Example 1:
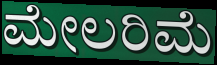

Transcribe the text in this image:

ಮೇಲರಿಮೆ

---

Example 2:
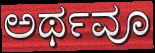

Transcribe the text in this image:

ಅರ್ಥವೂ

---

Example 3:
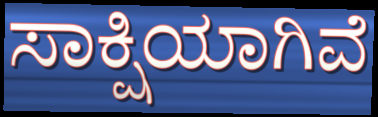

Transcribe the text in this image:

ಸಾಕ್ಷಿಯಾಗಿವೆ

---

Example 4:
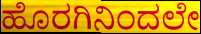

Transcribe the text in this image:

ಹೊರಗಿನಿಂದಲೇ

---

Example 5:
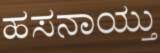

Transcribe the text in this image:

ಹಸನಾಯ್ತು